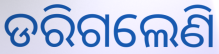
ଡରିଗଲେଣି